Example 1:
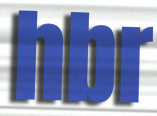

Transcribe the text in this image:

hbr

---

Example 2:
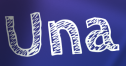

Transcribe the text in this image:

Una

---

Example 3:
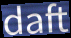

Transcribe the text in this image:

daft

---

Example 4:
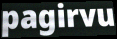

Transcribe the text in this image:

pagirvu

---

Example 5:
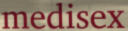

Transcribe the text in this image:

medisex